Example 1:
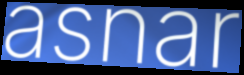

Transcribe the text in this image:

asnar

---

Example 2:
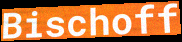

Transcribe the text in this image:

Bischoff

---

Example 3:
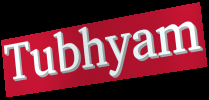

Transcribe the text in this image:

Tubhyam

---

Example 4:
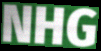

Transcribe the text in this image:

NHG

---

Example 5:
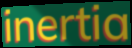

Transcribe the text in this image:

inertia